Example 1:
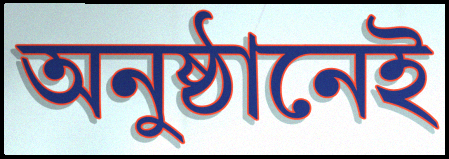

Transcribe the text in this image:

অনুষ্ঠানেই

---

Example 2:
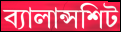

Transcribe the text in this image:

ব্যালান্সশিট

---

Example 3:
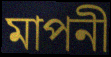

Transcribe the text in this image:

মাপনী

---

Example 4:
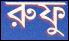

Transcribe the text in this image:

রুফু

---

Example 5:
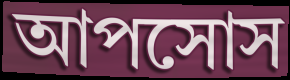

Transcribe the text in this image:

আপসোস